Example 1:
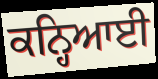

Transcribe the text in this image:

ਕਨ੍ਹਿਆਈ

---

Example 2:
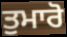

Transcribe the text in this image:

ਤੁਮਾਰੋ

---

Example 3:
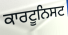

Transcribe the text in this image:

ਕਾਰਟੂਨਿਸਟ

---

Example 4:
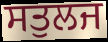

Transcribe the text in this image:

ਸਤੁਲਜ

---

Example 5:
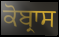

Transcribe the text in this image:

ਕੋਬ੍ਰਾਸ